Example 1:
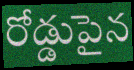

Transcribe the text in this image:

రోడ్డుపైన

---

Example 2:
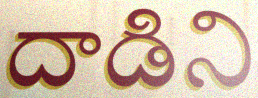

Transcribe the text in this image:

దాడిని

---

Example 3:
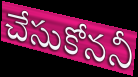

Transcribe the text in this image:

చేసుకోననీ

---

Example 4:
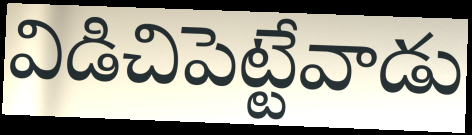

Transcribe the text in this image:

విడిచిపెట్టేవాడు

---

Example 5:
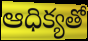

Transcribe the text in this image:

ఆధిక్యతో